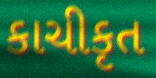
કાચીકૃત